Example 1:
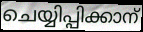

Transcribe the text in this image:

ചെയ്യിപ്പിക്കാന്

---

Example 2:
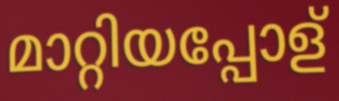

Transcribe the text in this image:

മാറ്റിയപ്പോള്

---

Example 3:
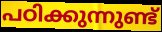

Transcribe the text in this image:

പഠിക്കുന്നുണ്ട്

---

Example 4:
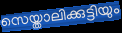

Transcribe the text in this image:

സെയ്താലിക്കുട്ടിയും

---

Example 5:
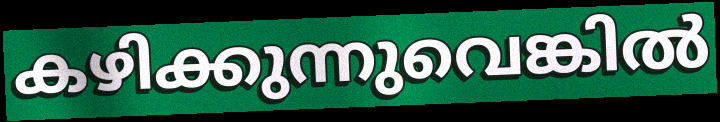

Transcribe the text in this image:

കഴിക്കുന്നുവെങ്കിൽ